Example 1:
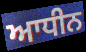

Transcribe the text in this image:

ਆਧੀਨ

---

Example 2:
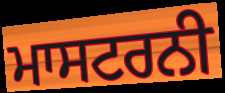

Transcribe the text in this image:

ਮਾਸਟਰਨੀ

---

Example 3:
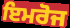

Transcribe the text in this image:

ਇਮਰੋਜ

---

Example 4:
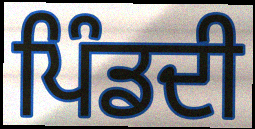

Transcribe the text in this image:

ਪਿੰਡਦੀ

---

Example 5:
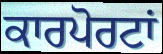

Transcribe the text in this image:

ਕਾਰਪੋਰਟਾਂ